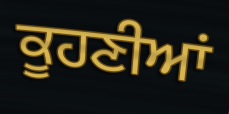
ਕੂਹਣੀਆਂ